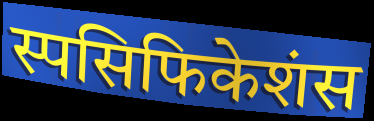
स्पसिफिकेशंस